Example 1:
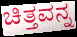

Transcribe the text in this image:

ಚಿತ್ತವನ್ನ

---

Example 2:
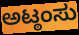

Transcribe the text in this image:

ಅಟ್ಠಂಸು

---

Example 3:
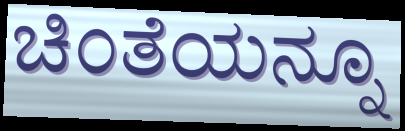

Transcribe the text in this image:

ಚಿಂತೆಯನ್ನೂ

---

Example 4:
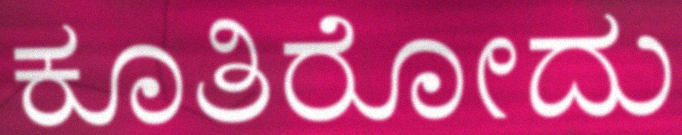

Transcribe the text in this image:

ಕೂತಿರೋದು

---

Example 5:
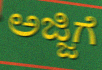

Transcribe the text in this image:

ಅಜ್ಜಿಗೆ